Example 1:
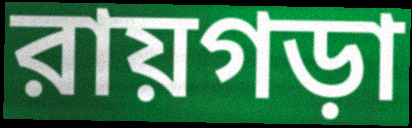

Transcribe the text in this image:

রায়গড়া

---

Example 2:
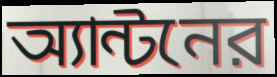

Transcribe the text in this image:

অ্যান্টনের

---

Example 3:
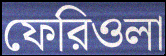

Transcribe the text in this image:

ফেরিওলা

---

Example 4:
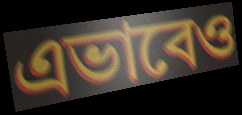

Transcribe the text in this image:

এভাবেও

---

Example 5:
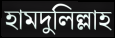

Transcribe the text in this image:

হামদুলিল্লাহ